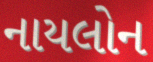
નાયલોન